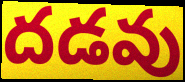
దడవు